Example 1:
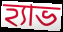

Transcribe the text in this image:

হ্যাভ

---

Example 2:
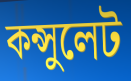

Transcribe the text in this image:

কন্সুলেট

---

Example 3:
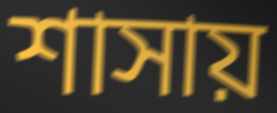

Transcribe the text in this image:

শাসায়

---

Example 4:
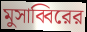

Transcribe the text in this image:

মুসাব্বিরের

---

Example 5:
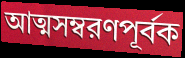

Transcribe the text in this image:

আত্মসম্বরণপূর্বক